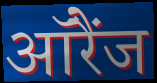
ऑरैंज